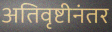
अतिवृष्टीनंतर